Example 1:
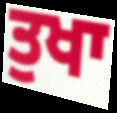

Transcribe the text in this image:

ਤੁਖਾ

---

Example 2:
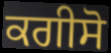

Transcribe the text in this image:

ਕਗੀਸੋ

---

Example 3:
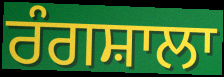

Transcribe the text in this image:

ਰੰਗਸ਼ਾਲਾ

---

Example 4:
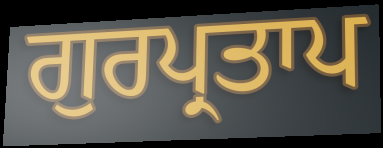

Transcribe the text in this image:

ਗੁਰਪ੍ਰਤਾਪ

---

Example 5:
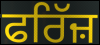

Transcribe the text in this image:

ਫਰਿੱਜ਼